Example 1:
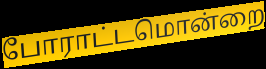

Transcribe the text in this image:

போராட்டமொன்றை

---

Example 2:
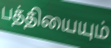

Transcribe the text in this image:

பத்தியையும்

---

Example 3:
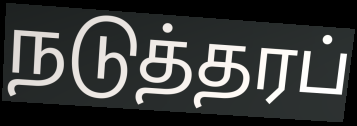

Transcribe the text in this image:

நடுத்தரப்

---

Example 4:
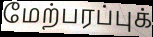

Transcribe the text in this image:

மேற்பரப்புக்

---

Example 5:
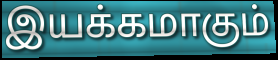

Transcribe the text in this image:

இயக்கமாகும்